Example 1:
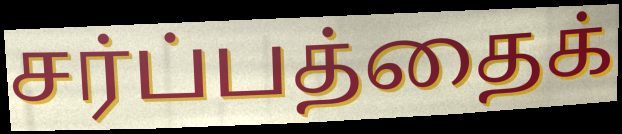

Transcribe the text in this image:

சர்ப்பத்தைக்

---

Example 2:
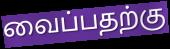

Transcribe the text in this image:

வைப்பதற்கு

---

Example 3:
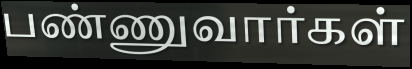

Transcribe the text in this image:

பண்ணுவார்கள்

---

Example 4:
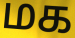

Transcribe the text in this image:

மக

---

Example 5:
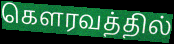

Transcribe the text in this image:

கௌரவத்தில்